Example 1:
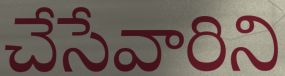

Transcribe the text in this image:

చేసేవారిని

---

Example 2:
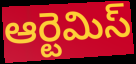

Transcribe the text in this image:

ఆర్టెమిస్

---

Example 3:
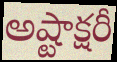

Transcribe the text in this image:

అష్టాక్షరీ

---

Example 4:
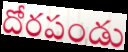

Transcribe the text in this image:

దోరపండు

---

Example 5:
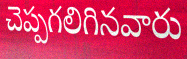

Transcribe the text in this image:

చెప్పగలిగినవారు